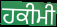
ਹਕੀਮੀ